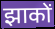
झाकों